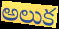
అలుక